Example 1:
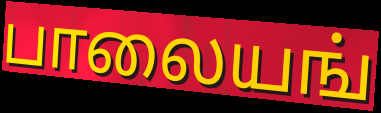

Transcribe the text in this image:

பாலையங்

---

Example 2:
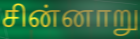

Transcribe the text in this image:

சின்னாறு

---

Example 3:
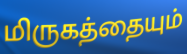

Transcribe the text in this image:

மிருகத்தையும்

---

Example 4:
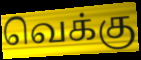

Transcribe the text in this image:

வெக்கு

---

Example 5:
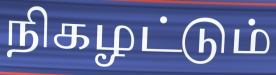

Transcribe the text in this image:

நிகழட்டும்